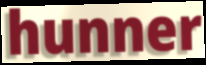
hunner